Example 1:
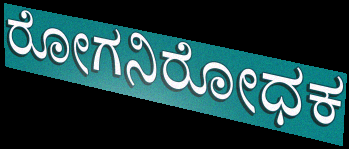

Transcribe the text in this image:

ರೋಗನಿರೋಧಕ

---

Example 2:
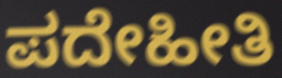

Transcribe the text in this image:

ಪದೇಹೀತಿ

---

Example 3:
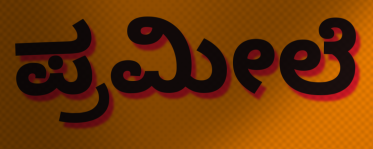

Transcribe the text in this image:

ಪ್ರಮೀಲೆ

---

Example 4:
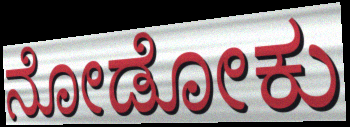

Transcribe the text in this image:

ನೋಡೋಕು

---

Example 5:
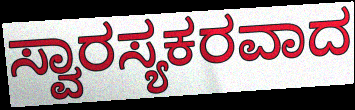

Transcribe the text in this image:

ಸ್ವಾರಸ್ಯಕರವಾದ